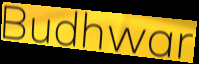
Budhwar